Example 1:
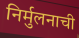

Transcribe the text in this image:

निर्मुलनाची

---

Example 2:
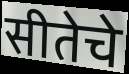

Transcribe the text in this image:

सीतेचे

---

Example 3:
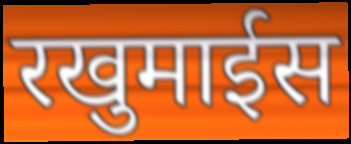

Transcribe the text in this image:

रखुमाईस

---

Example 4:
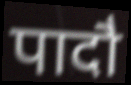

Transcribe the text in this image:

पादौ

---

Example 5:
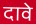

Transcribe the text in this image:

दावे